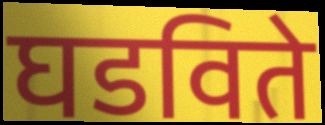
घडविते